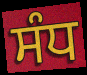
ਸੰਧ